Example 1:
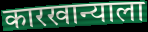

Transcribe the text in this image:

कारखान्याला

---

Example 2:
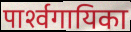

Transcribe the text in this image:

पार्श्वगायिका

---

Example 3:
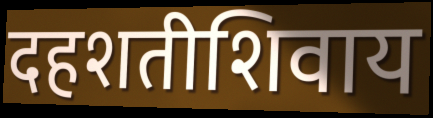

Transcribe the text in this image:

दहशतीशिवाय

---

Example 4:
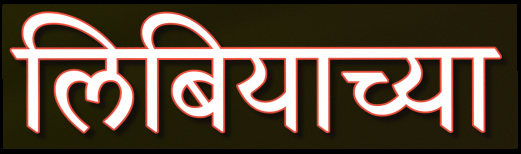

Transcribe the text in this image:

लिबियाच्या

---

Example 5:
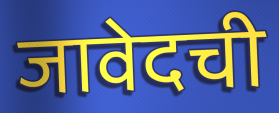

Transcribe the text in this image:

जावेदची